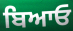
ਬਿਆਓ